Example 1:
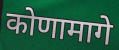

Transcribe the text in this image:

कोणामागे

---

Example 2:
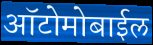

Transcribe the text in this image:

ऑटोमोबाईल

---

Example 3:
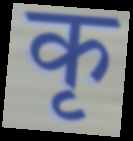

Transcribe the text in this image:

कृ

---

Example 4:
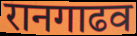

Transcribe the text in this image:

रानगाढव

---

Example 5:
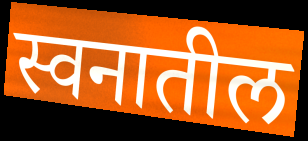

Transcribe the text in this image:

स्वनातील